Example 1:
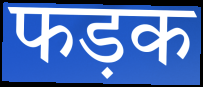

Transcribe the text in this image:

फड़क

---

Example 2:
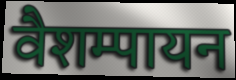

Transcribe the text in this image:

वैशम्पायन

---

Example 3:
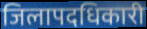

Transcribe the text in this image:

जिलापदधिकारी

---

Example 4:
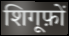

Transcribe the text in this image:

शिगूफ़ों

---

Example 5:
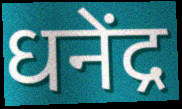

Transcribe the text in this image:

धनेंद्र